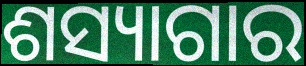
ଶସ୍ୟାଗାର